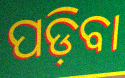
ପଡ଼ିବା